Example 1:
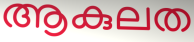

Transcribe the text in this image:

ആകുലത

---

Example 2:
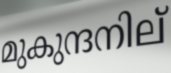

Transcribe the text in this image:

മുകുന്ദനില്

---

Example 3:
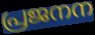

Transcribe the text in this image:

പ്രജനന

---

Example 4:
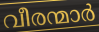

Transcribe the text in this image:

വീരന്മാർ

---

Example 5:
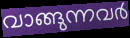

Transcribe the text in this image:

വാങ്ങുന്നവർ